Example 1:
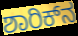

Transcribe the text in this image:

ಶಾರಿಕ್‌ನ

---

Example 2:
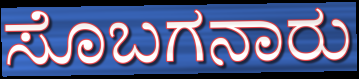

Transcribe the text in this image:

ಸೊಬಗನಾರು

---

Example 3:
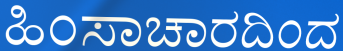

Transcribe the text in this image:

ಹಿಂಸಾಚಾರದಿಂದ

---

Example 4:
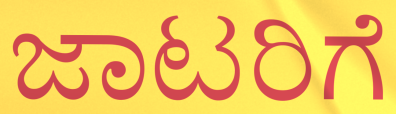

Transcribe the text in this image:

ಜಾಟರಿಗೆ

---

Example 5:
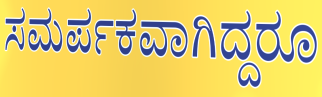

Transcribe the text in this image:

ಸಮರ್ಪಕವಾಗಿದ್ದರೂ